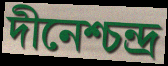
দীনেশ্চন্দ্র